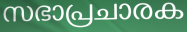
സഭാപ്രചാരക